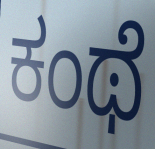
ಕಂಥೆ